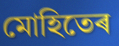
মোহিতেৰ